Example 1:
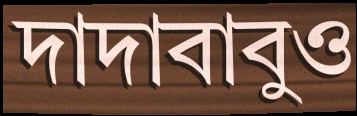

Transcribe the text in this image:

দাদাবাবুও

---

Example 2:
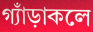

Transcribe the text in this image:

গ্যাঁড়াকলে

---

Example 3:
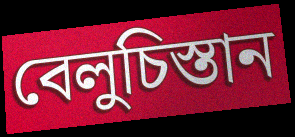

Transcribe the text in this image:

বেলুচিস্তান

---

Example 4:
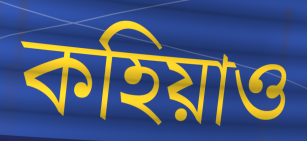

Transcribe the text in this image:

কহিয়াও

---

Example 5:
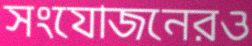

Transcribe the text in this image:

সংযোজনেরও